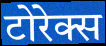
टोरेक्स